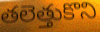
తలెత్తుకొని